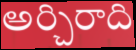
అర్చిరాది